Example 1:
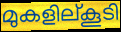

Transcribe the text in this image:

മുകളില്കൂടി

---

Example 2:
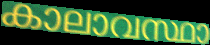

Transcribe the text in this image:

കാലാവസ്ഥാ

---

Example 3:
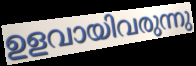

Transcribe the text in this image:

ഉളവായിവരുന്നു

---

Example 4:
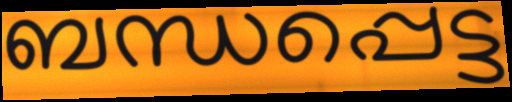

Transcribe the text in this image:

ബന്ധപ്പെട്ട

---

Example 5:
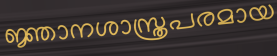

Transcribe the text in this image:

ജ്ഞാനശാസ്ത്രപരമായ